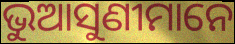
ଭୁଆସୁଣୀମାନେ